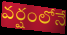
వర్షంలోనే